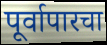
पूर्वापारचा